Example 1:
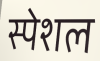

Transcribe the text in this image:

स्‍पेशल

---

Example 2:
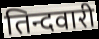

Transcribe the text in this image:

तिन्दवारी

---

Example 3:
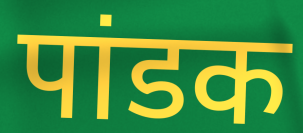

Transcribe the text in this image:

पांडक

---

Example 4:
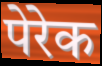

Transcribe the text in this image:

पेरेक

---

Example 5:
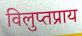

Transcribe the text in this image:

विलुप्तप्राय